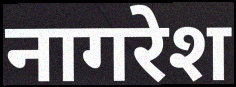
नागरेश